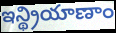
ఇన్థ్రియాణాం